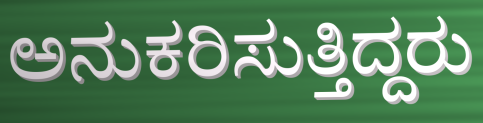
ಅನುಕರಿಸುತ್ತಿದ್ದರು